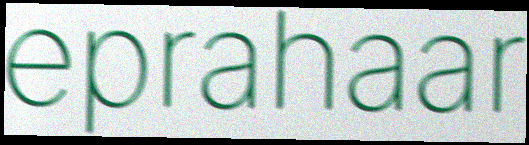
eprahaar